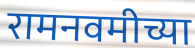
रामनवमीच्या